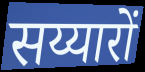
सय्यारों